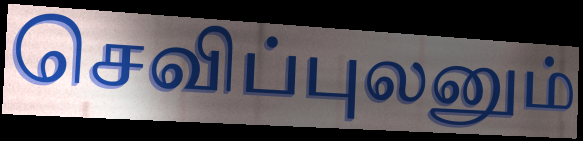
செவிப்புலனும்